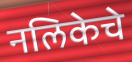
नलिकेचे